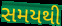
સમયથી